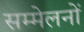
सम्‍मेलनों